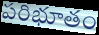
పరిభూతం